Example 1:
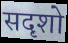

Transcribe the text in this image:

सदृशो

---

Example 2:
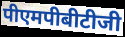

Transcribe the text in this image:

पीएमपीबीटीजी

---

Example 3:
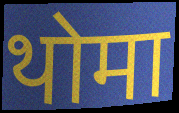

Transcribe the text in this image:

थोमा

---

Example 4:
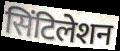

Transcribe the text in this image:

सिंटिलेशन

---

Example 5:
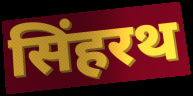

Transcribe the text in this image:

सिंहरथ